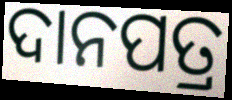
ଦାନପତ୍ର